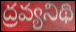
ద్రవ్యనిథి